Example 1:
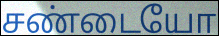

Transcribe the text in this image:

சண்டையோ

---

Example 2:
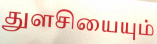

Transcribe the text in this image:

துளசியையும்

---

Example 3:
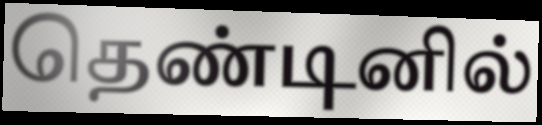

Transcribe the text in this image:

தெண்டினில்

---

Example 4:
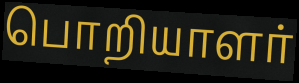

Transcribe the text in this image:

பொறியாளர்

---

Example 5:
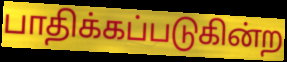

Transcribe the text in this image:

பாதிக்கப்படுகின்ற